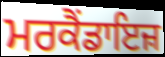
ਮਰਕੈਂਡਾਇਜ਼